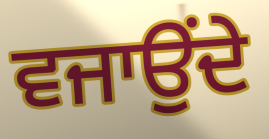
ਵਜਾਉਂਦੇ